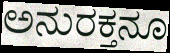
ಅನುರಕ್ತನೂ